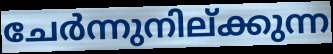
ചേർന്നുനില്ക്കുന്ന